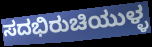
ಸದಭಿರುಚಿಯುಳ್ಳ